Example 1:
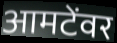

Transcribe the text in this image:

आमटेंवर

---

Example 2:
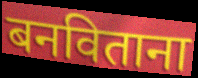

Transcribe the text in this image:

बनविताना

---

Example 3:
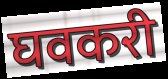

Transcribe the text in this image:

घवकरी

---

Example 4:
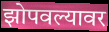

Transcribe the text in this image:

झोपवल्यावर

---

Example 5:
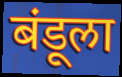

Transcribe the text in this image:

बंडूला